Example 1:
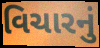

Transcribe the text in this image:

વિચારનું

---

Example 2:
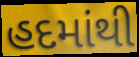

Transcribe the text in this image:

હદમાંથી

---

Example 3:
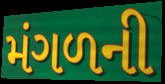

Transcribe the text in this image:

મંગળની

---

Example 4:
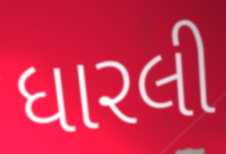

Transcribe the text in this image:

ધારલી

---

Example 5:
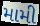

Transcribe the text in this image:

મામી